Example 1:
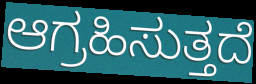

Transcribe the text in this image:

ಆಗ್ರಹಿಸುತ್ತದೆ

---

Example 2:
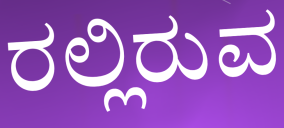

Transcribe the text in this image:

ರಲ್ಲಿರುವ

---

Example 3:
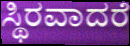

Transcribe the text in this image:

ಸ್ಥಿರವಾದರೆ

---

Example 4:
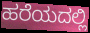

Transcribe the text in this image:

ಹರೆಯದಲ್ಲಿ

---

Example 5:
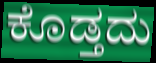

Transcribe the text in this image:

ಕೊಡ್ತದು